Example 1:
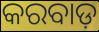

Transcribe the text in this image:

କରବାଡ଼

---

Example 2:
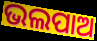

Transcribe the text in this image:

ଭଲପାଅ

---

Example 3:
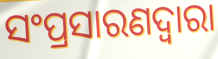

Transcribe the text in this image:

ସଂପ୍ରସାରଣଦ୍ଵାରା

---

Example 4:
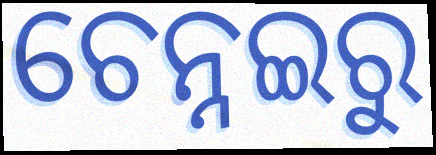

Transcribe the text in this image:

ଚେନ୍ନଇରୁ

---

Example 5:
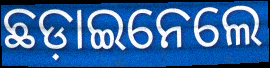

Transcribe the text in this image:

ଛଡ଼ାଇନେଲେ